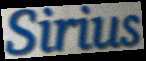
Sirius